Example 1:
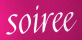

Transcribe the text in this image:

soiree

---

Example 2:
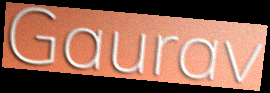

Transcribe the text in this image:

Gaurav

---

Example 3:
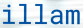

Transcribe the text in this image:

illam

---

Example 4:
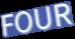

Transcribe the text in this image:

FOUR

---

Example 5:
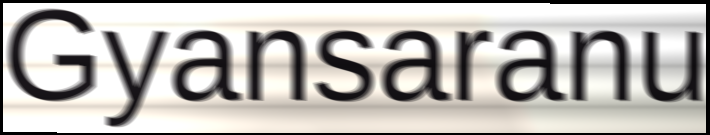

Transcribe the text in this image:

Gyansaranu